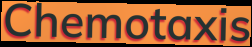
Chemotaxis